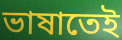
ভাষাতেই